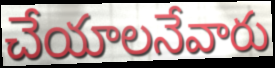
చేయాలనేవారు